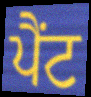
ਪੈਂਟ